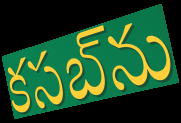
కసబ్‌ను